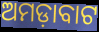
ଅମଡ଼ାବାଟ